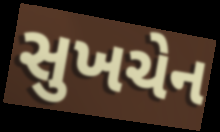
સુખચેન